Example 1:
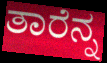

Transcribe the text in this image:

ತಾರೆನ್ನ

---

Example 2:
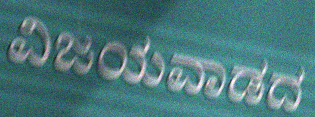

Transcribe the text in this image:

ವಿಜಯವಾಡದ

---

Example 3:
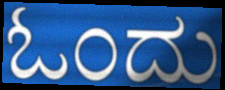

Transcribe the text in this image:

ಓಂದು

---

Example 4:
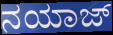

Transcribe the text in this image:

ನಯಾಜ್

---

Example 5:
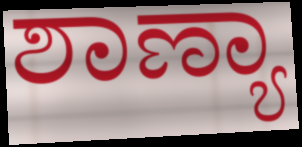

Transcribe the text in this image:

ಶಾಣ್ಯಾ